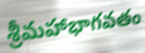
శ్రీమహాభాగవతం